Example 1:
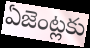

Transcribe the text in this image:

ఏజెంట్లకు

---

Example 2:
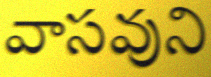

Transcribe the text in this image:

వాసవుని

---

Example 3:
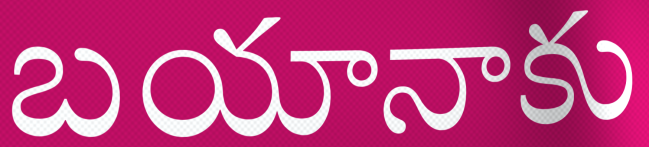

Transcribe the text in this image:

బయానాకు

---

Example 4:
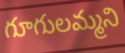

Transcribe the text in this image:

గూగులమ్మని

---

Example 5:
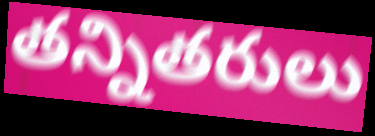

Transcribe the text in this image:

తన్నితరులు